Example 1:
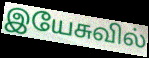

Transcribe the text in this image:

இயேசுவில்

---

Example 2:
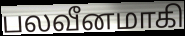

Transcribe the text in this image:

பலவீனமாகி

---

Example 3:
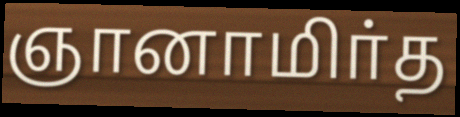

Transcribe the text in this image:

ஞானாமிர்த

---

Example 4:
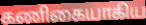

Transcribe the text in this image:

கணிகையாகிய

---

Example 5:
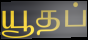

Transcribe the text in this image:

யூதப்